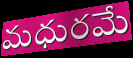
మధురమే